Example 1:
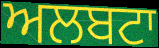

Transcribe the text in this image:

ਅਲਬਟਾ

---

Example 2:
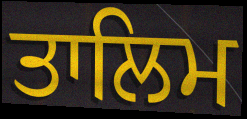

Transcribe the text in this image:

ਤਾਲਿਮ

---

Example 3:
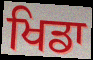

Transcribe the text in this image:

ਖਿਡਾ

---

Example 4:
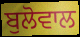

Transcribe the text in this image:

ਬੁਲੋਵਾਲ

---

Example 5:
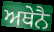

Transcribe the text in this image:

ਅਥੇਨੈ